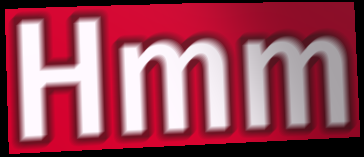
Hmm